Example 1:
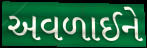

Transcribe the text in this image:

અવળાઈને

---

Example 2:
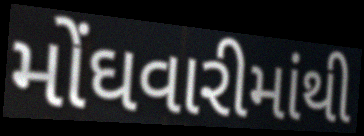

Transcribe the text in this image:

મોંઘવારીમાંથી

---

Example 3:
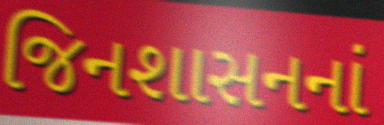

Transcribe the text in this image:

જિનશાસનનાં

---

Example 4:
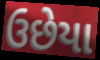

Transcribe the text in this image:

ઉછેયા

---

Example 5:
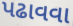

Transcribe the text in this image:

પઢાવવા